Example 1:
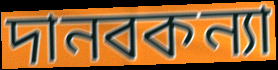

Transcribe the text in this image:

দানবকন্যা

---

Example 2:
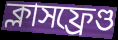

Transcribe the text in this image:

ক্লাসফ্রেণ্ড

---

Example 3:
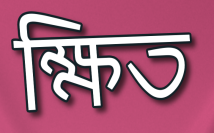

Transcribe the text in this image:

ক্ষিত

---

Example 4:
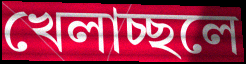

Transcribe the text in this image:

খেলাচ্ছলে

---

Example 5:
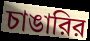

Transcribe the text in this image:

চাঙারির